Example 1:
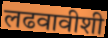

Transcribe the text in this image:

लढवावीशी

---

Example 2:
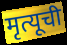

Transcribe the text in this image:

मृत्यूची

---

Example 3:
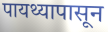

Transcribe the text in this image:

पायथ्यापासून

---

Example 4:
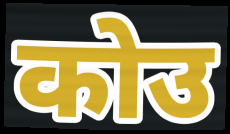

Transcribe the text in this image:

कोउ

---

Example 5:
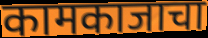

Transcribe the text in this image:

कामकाजाचा